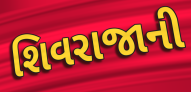
શિવરાજાની